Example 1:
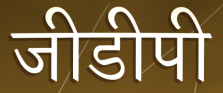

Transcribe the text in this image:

जीडीपी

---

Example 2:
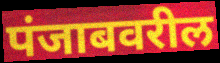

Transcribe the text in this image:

पंजाबवरील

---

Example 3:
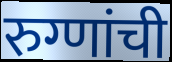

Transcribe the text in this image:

रुग्‍णांची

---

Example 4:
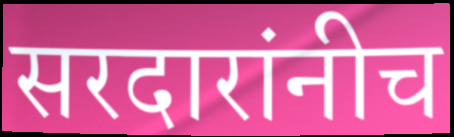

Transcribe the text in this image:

सरदारांनीच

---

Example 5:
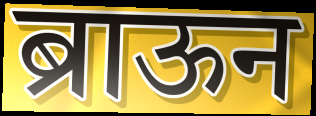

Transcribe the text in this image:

ब्राऊन